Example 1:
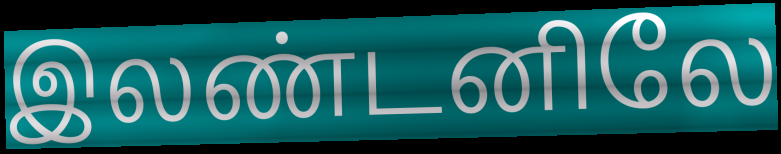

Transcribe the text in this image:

இலண்டனிலே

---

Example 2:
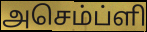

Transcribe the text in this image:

அசெம்ப்ளி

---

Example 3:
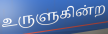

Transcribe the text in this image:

உருளுகின்ற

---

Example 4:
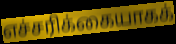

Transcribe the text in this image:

எச்சரிக்கையாகக்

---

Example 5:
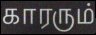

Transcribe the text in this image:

காரரும்